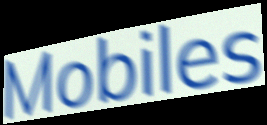
Mobiles